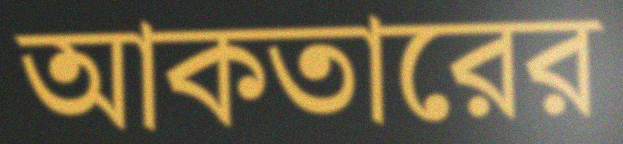
আকতারের